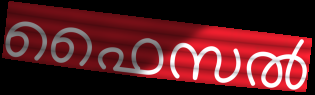
ഫൈസൽ